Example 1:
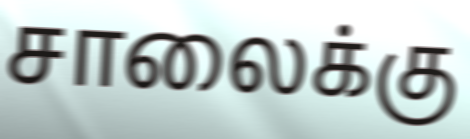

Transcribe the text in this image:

சாலைக்கு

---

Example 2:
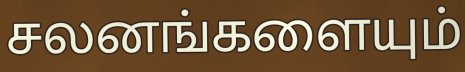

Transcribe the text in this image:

சலனங்களையும்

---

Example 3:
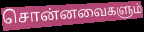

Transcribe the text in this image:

சொன்னவைகளும்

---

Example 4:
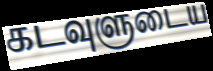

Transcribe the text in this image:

கடவுளுடைய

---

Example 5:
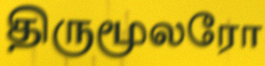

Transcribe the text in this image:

திருமூலரோ